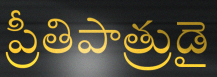
ప్రీతిపాత్రుడై